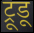
ट्रूडू